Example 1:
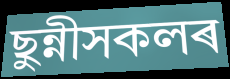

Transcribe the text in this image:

ছুন্নীসকলৰ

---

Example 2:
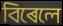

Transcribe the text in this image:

বিৰেলে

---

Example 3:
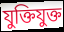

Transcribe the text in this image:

যুক্তিযুক্ত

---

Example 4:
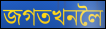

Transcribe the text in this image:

জগতখনলৈ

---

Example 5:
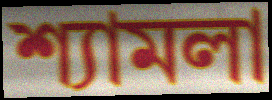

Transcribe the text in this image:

শ্যামলা